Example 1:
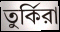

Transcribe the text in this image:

তুর্কিরা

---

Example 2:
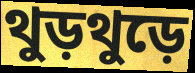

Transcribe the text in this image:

থুড়থুড়ে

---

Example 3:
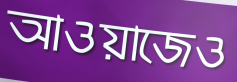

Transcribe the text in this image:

আওয়াজেও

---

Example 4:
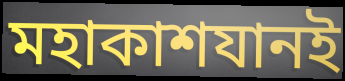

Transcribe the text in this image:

মহাকাশযানই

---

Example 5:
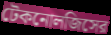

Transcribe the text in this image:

টেকনোলজিসের